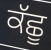
ਕੱਛੂ